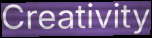
Creativity